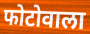
फोटोवाला